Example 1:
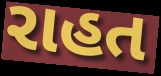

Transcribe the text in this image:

રાહત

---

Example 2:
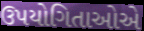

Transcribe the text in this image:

ઉપયોગિતાઓએ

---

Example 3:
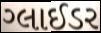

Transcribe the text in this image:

ગ્લાઈડર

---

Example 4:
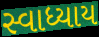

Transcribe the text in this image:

સ્વાધ્યાય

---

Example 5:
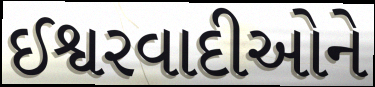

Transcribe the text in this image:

ઈશ્વરવાદીઓને